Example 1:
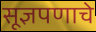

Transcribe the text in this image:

सूज्ञपणाचे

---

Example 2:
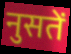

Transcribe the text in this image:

नुसतें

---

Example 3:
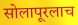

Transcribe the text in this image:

सोलापूरलाच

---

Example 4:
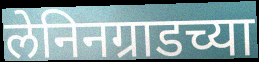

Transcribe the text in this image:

लेनिनग्राडच्या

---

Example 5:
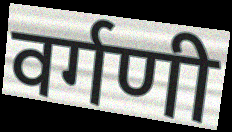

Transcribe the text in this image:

वर्गणी